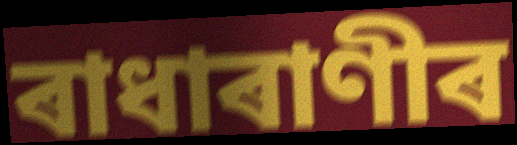
ৰাধাৰাণীৰ